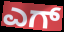
ಎಗ್